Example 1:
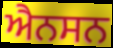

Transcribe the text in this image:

ਐਨਸਨ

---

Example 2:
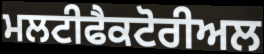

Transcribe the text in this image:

ਮਲਟੀਫੈਕਟੋਰੀਅਲ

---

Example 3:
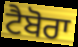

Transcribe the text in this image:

ਟੈਬੋਰਾ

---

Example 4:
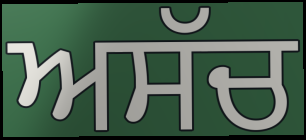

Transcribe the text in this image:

ਅਸੱਚ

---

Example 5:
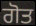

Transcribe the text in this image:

ਗੋਤ